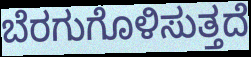
ಬೆರಗುಗೊಳಿಸುತ್ತದೆ